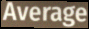
Average